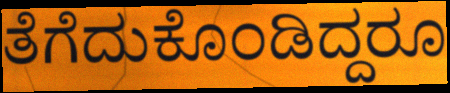
ತೆಗೆದುಕೊಂಡಿದ್ದರೂ